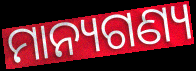
ମାନ୍ୟଗଣ୍ୟ